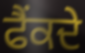
ਫੈਂਕਦੇ